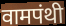
वामपंथी